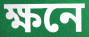
ক্ষনে